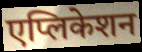
एप्लिकेशन